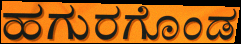
ಹಗುರಗೊಂಡ